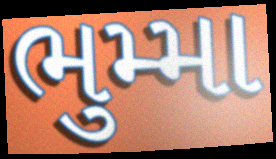
ભુમ્મા